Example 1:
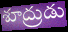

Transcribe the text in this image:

శూద్రుడు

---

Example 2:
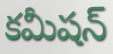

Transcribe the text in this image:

కమీషన్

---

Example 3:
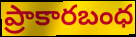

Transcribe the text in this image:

ప్రాకారబంధ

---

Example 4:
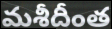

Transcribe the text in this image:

మశీదీంత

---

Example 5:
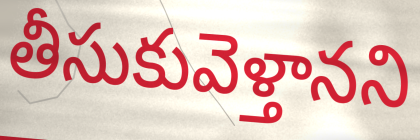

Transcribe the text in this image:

తీసుకువెళ్తానని